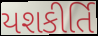
યશકીર્તિ